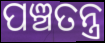
ପଞ୍ଚତନ୍ତ୍ର